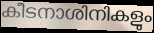
കീടനാശിനികളും